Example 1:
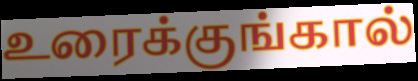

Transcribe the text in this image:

உரைக்குங்கால்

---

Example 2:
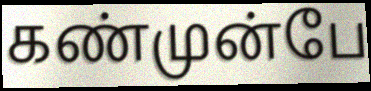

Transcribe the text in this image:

கண்முன்பே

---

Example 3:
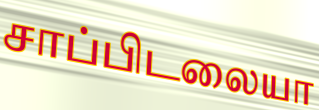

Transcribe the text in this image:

சாப்பிடலையா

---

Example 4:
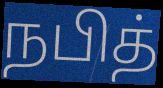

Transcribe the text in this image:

நபித்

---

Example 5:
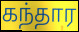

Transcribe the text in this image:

கந்தார